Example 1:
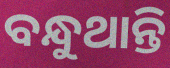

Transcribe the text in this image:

ବନ୍ଧୁଥାନ୍ତି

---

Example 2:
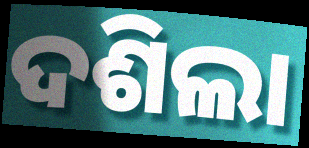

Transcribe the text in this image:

ଦଶିଲା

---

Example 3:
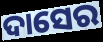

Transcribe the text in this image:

ଦାସେର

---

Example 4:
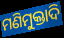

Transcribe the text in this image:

ମଣିମୁକ୍ତାଦି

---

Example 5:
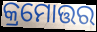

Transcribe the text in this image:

କ୍ରମୋତ୍ତର